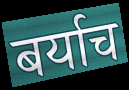
बर्याच